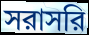
সরাসরি